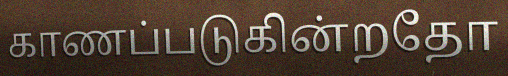
காணப்படுகின்றதோ